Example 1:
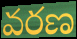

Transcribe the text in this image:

వరణ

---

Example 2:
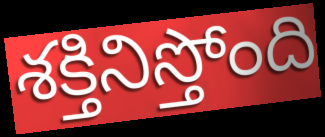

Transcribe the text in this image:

శక్తినిస్తోంది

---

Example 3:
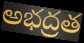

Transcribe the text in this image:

అభద్రత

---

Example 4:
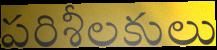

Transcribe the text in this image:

పరిశీలకులు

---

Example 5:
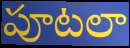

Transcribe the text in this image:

పూటలా